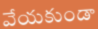
వేయకుండా